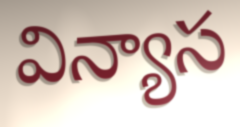
విన్యాస